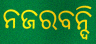
ନଜରବନ୍ଦି